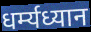
धर्म्यध्यान